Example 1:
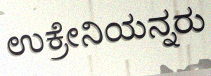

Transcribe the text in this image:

ಉಕ್ರೇನಿಯನ್ನರು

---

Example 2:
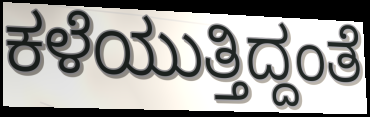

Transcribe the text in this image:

ಕಳೆಯುತ್ತಿದ್ದಂತೆ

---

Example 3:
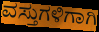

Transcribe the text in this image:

ವಸ್ತುಗಳಿಗಾಗಿ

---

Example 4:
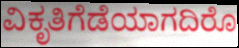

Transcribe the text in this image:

ವಿಕೃತಿಗೆಡೆಯಾಗದಿರೊ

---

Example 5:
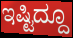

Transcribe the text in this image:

ಇಷ್ಟಿದ್ದೂ